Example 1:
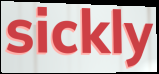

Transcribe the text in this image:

sickly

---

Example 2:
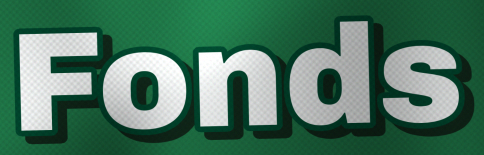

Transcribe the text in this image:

Fonds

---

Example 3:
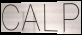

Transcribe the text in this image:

CALP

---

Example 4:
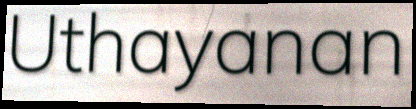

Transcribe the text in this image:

Uthayanan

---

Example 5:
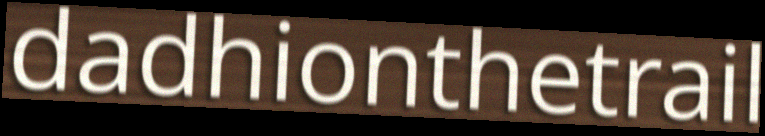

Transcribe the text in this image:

dadhionthetrail